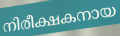
നിരീക്ഷകനായ